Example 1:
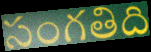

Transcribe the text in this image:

సంగతిది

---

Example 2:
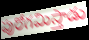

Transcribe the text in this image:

పురోగమిస్తాడు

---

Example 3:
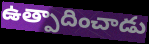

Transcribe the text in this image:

ఉత్పాదించాడు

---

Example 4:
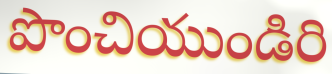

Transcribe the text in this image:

పొంచియుండిరి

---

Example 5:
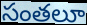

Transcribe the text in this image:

సంతలూ